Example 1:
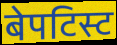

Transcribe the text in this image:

बेपटिस्ट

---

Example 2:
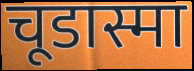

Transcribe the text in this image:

चूडास्मा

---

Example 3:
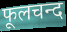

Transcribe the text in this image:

फूलचन्द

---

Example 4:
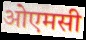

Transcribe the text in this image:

ओएमसी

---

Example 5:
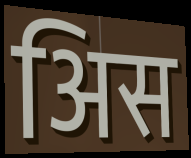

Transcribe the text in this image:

अिस